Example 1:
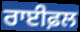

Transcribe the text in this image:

ਰਾਈਫ਼ਲ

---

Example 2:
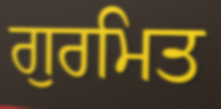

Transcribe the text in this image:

ਗੁਰਮਿਤ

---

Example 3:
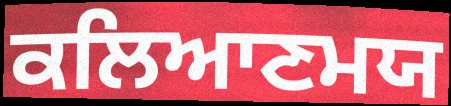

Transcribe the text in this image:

ਕਲਿਆਣਮਯ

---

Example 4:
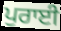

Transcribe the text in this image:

ਪੁਰਾਈ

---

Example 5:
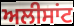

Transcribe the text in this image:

ਅਲੀਸਾਂਟ